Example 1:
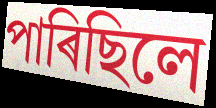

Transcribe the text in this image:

পাৰিছিলে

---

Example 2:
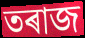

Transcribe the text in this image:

তৰাজ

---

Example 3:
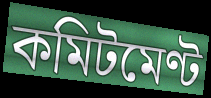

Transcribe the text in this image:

কমিটমেণ্ট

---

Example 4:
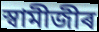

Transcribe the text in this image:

স্বামীজীৰ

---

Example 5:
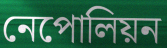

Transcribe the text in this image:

নেপোলিয়ন